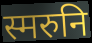
स्मरुनि